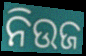
ନିଉଜ